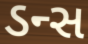
ડન્સ